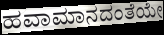
ಹವಾಮಾನದಂತೆಯೇ